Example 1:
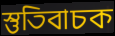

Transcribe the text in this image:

স্তুতিবাচক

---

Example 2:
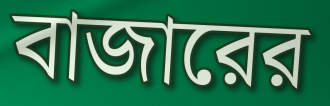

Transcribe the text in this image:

বাজারের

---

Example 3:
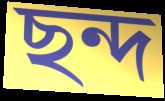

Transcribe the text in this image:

ছন্দ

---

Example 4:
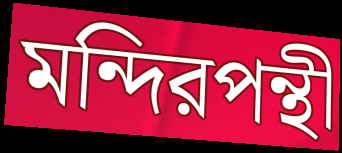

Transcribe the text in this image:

মন্দিরপন্থী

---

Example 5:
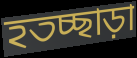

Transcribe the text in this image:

হতচ্ছাড়া